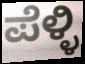
ಪೆಳ್ಳಿ